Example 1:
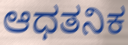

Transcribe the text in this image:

ಆಧತನಿಕ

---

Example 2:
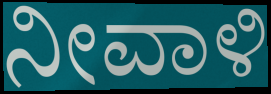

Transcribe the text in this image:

ನೀವಾಳಿ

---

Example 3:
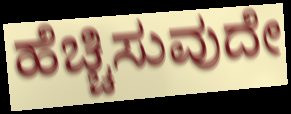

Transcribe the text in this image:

ಹೆಚ್ಚಿಸುವುದೇ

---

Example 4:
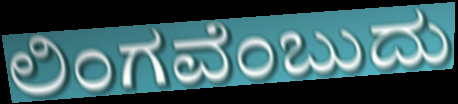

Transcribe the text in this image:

ಲಿಂಗವೆಂಬುದು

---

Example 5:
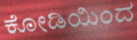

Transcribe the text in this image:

ಕೋಡಿಯಿಂದ